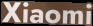
Xiaomi